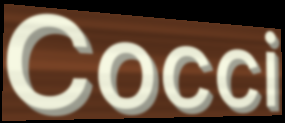
Cocci